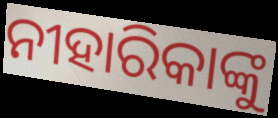
ନୀହାରିକାଙ୍କୁ